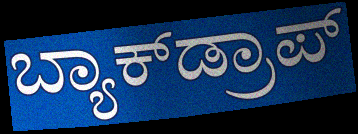
ಬ್ಯಾಕ್‌ಡ್ರಾಪ್